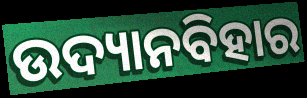
ଉଦ୍ୟାନବିହାର